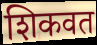
शिकवत